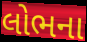
લોભના